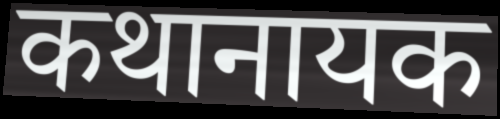
कथानायक